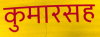
कुमारसह